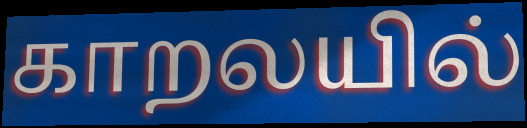
காறலயில்